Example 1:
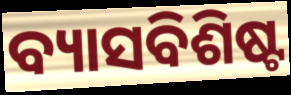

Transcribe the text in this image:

ବ୍ୟାସବିଶିଷ୍ଟ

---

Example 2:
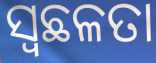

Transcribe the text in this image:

ସ୍ଵଛଳତା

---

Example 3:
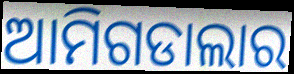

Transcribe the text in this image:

ଆମିଗଡାଲାର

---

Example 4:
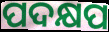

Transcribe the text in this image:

ପଦକ୍ଷପ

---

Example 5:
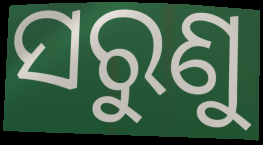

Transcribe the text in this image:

ସରୁଣୁ